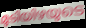
മുടിയിഴയുടെ